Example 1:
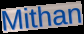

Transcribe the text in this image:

Mithan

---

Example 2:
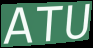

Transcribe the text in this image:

ATU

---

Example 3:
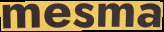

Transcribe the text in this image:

mesma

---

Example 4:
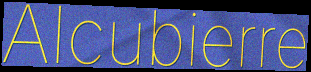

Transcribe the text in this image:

Alcubierre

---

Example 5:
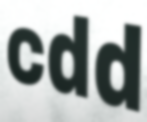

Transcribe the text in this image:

cdd